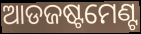
ଆଡଜଷ୍ଟମେଣ୍ଟ